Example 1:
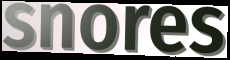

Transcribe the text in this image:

snores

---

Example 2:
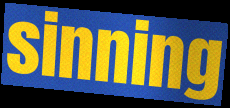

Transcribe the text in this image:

sinning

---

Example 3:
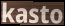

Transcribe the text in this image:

kasto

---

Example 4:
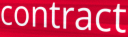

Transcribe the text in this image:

contract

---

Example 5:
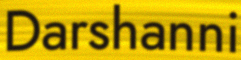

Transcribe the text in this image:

Darshanni